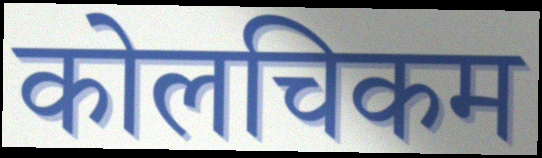
कोलचिकम